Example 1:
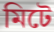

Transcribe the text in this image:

মিটে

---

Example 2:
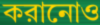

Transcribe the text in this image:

করানোও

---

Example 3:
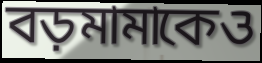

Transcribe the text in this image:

বড়মামাকেও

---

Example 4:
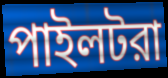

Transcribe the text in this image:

পাইলটরা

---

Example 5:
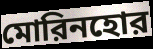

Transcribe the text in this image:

মোরিনহোর